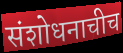
संशोधनाचीच